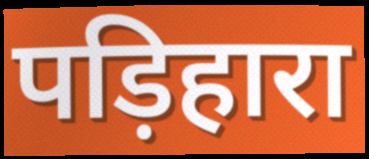
पड़िहारा